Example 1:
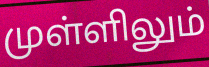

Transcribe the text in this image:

முள்ளிலும்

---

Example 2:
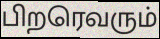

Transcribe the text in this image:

பிறரெவரும்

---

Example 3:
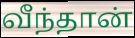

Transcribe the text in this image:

வீந்தான்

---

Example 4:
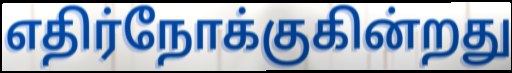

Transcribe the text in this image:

எதிர்நோக்குகின்றது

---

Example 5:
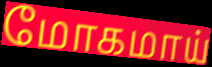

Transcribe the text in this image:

மோகமாய்